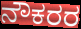
ನೌಕರರ